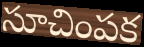
సూచింపక